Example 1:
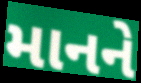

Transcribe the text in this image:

માનને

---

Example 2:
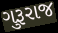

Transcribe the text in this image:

ગુરૂરાજ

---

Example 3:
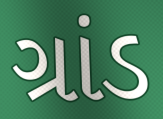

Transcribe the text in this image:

ગ્રાંડ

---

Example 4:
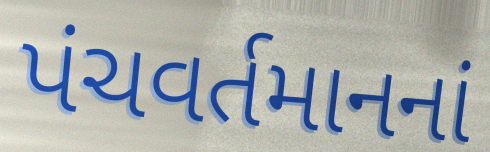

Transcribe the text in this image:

પંચવર્તમાનનાં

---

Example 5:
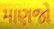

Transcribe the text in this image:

માણજો